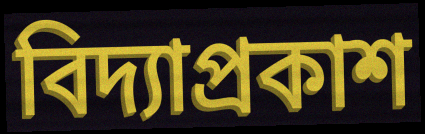
বিদ্যাপ্রকাশ